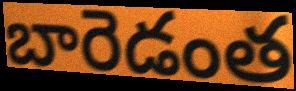
బారెడంత